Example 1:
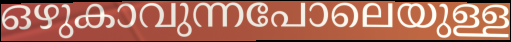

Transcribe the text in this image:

ഒഴുകാവുന്നപോലെയുള്ള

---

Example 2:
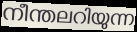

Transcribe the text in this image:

നീന്തലറിയുന്ന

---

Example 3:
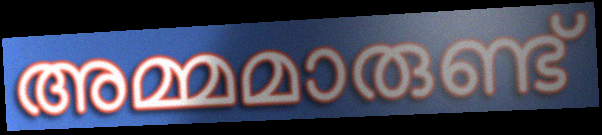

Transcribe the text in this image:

അമ്മമാരുണ്ട്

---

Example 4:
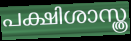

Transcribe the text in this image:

പക്ഷിശാസ്ത്ര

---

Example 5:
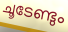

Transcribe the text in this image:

ചൂടേണ്ടും